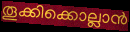
തൂക്കിക്കൊല്ലാൻ